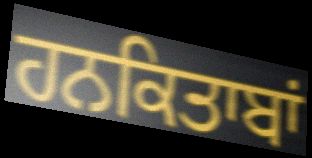
ਹਨਕਿਤਾਬਾਂ